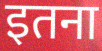
इतना